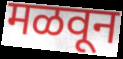
मळवून